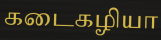
கடைகழியா